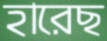
হারেছ